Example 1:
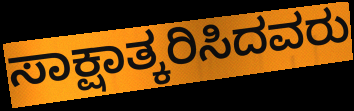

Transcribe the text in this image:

ಸಾಕ್ಷಾತ್ಕರಿಸಿದವರು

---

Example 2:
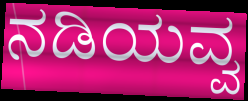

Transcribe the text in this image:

ನಡಿಯವ್ವ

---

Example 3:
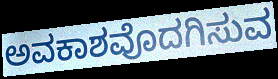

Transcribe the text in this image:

ಅವಕಾಶವೊದಗಿಸುವ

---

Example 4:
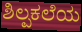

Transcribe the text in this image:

ಶಿಲ್ಪಕಲೆಯ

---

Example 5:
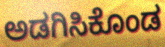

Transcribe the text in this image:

ಅಡಗಿಸಿಕೊಂಡ